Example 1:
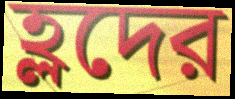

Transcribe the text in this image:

হ্লদের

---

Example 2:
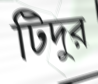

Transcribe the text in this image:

টিদুর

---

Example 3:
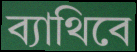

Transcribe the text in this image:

ব্যাথিবে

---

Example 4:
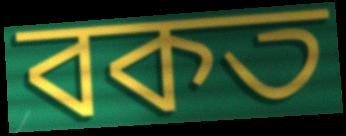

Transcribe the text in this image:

বকত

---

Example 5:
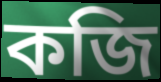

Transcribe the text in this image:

কজি